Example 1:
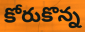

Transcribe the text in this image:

కోరుకొన్న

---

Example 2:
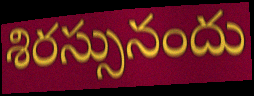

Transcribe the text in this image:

శిరస్సునందు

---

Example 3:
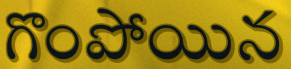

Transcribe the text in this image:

గొంపోయిన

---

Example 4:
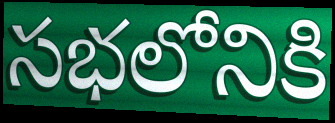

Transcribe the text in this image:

సభలోనికి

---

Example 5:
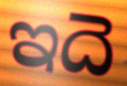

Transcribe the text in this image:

ఇదె